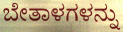
ಬೇತಾಳಗಳನ್ನು